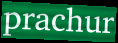
prachur